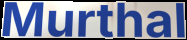
Murthal